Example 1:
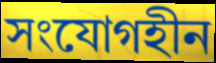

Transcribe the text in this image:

সংযোগহীন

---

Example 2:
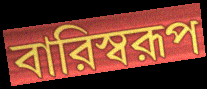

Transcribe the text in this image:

বারিস্বরূপ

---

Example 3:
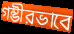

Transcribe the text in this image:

গম্ভীরভাবে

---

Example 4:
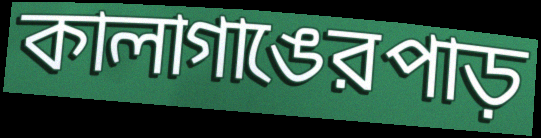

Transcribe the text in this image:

কালাগাঙেরপাড়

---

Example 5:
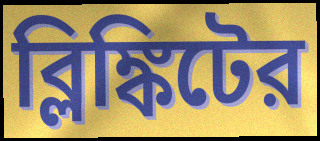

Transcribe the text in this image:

ব্লিঙ্কিটের